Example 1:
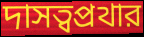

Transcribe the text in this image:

দাসত্বপ্রথার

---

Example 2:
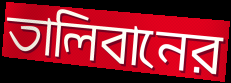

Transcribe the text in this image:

তালিবানের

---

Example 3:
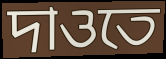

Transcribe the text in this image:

দাওতে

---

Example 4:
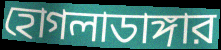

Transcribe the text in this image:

হোগলাডাঙ্গার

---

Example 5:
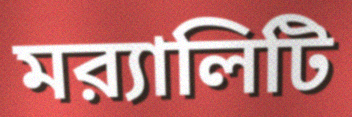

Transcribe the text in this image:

মর‍্যালিটি